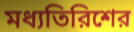
মধ্যতিরিশের